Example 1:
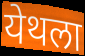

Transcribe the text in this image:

येथला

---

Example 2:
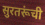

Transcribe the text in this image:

सुरतरूंची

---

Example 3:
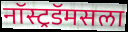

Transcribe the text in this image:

नॉस्ट्रडॅमसला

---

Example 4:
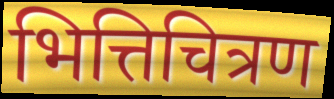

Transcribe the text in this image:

भित्तिचित्रण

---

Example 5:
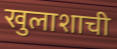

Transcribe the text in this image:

खुलाशाची